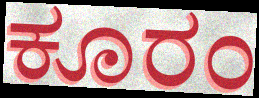
ಕೂರಂ